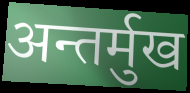
अन्तर्मुख